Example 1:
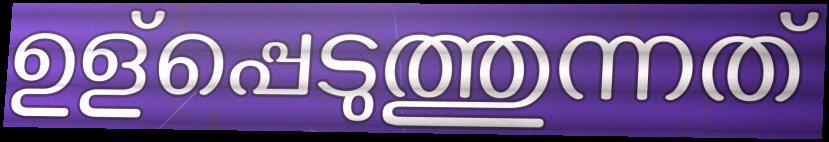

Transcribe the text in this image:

ഉള്പ്പെടുത്തുന്നത്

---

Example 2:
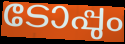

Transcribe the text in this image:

ടോപ്പും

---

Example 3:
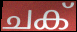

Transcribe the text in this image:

ചക്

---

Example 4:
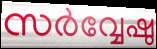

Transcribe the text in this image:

സർവ്വേഷു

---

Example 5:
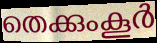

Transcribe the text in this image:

തെക്കുംകൂർ